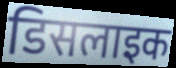
डिसलाइक